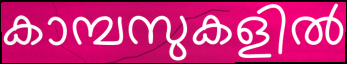
കാമ്പസുകളിൽ